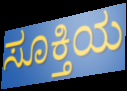
ಸೂಕ್ತಿಯ